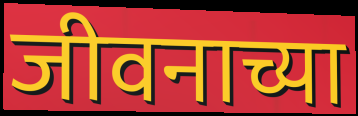
जीवनाच्या